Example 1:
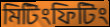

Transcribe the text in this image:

মিটিংফিটিং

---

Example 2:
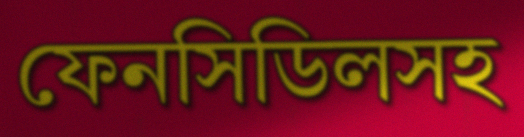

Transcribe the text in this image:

ফেনসিডিলসহ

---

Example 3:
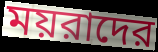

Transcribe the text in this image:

ময়রাদের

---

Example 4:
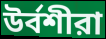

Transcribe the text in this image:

উর্বশীরা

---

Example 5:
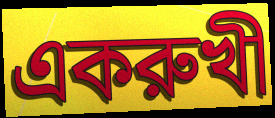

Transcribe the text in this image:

একরুখী